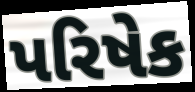
પરિષેક